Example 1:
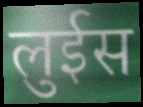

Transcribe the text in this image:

लुईस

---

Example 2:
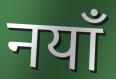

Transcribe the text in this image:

नयाँ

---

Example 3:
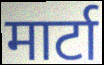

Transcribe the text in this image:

मार्टा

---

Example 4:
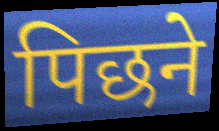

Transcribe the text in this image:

पिछने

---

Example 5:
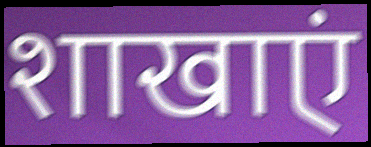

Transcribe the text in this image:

शाखाएं